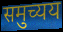
समुच्यय